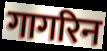
गागरिन